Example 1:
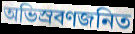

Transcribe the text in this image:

অভিস্রবণজনিত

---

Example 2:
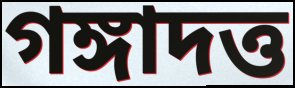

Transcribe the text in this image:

গঙ্গাদত্ত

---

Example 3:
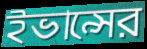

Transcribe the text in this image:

ইভান্সের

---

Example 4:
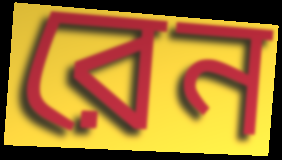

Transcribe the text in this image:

রেন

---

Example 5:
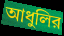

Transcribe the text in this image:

আধুলির